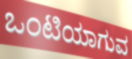
ಒಂಟಿಯಾಗುವ